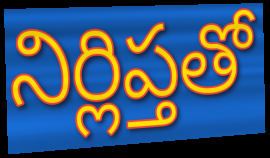
నిర్లిప్తతో